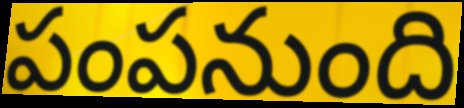
పంపనుంది